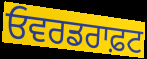
ਓਵਰਡਰਾਫ਼ਟ